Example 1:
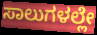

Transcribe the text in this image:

ಸಾಲುಗಳಲ್ಲೇ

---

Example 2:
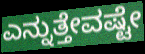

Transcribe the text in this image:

ಎನ್ನುತ್ತೇವಷ್ಟೇ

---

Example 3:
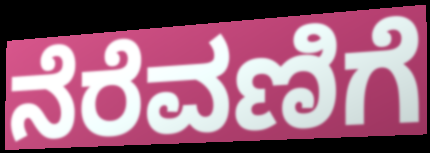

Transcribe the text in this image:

ನೆರೆವಣಿಗೆ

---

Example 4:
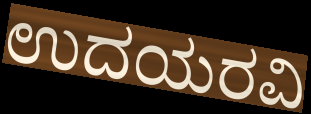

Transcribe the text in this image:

ಉದಯರವಿ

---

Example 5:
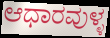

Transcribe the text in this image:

ಆಧಾರವುಳ್ಳ